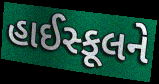
હાઈસ્કૂલને